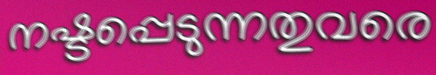
നഷ്ടപ്പെടുന്നതുവരെ